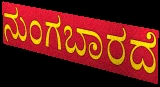
ನುಂಗಬಾರದೆ